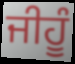
ਜੀਹੂੰ